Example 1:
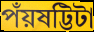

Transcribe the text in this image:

পঁয়ষট্টিটা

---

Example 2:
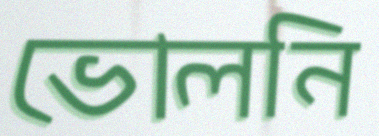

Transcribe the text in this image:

ভোলনি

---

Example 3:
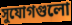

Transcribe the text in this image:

সুযোগগুলো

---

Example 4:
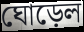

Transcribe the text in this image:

ঘোড়েল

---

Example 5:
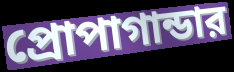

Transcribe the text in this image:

প্রোপাগান্ডার